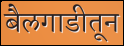
बैलगाडीतून